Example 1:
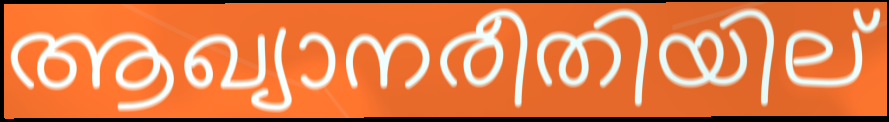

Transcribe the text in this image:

ആഖ്യാനരീതിയില്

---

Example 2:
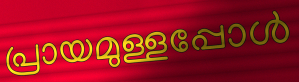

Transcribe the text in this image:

പ്രായമുള്ളപ്പോൾ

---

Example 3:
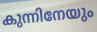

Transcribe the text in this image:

കുന്നിനേയും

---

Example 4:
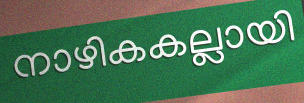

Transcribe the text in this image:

നാഴികകല്ലായി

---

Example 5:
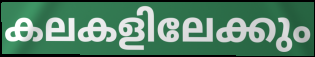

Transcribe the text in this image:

കലകളിലേക്കും